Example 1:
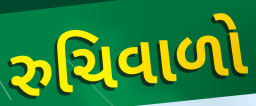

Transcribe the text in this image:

રુચિવાળો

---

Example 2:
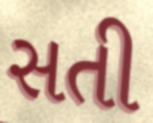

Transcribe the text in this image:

સતી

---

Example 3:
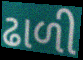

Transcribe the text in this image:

ઢાળી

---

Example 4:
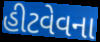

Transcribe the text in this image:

હીટવેવના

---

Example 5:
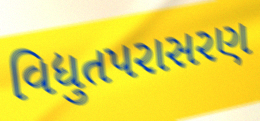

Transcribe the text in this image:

વિદ્યુતપરાસરણ